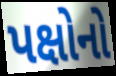
પક્ષોનો